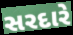
સરદારે